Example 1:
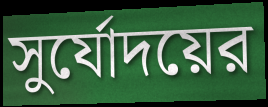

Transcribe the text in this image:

সুর্যোদয়ের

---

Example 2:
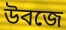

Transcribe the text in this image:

উবজে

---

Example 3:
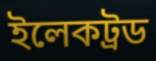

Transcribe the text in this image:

ইলেকট্রড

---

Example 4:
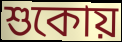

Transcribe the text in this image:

শুকোয়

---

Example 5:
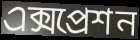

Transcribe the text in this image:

এক্সপ্রেশন